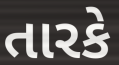
તારકે